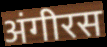
अंगीरस